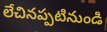
లేచినప్పటినుండి